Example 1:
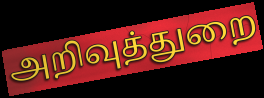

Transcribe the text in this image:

அறிவுத்துறை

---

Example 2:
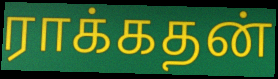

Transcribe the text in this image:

ராக்கதன்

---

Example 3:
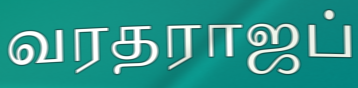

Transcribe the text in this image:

வரதராஜப்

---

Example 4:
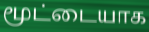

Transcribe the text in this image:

மூட்டையாக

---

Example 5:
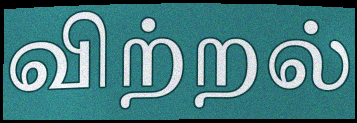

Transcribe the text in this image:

விற்றல்